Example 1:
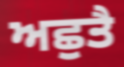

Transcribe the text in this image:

ਅਛੁਤੈ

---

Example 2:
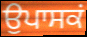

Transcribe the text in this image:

ਉਪਾਸਕਂ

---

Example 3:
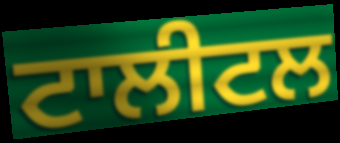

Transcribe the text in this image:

ਟਾਲੀਟਲ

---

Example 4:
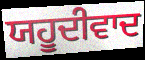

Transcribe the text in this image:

ਯਹੂਦੀਵਾਦ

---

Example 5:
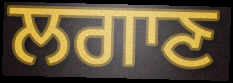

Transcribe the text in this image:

ਲਗਾਣ